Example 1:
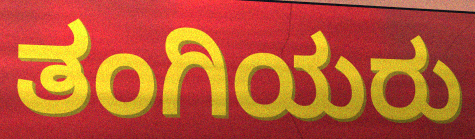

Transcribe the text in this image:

ತಂಗಿಯರು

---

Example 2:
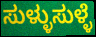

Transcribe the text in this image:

ಸುಳ್ಳುಸುಳ್ಳೆ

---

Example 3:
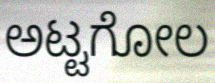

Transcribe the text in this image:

ಅಟ್ಟಗೋಲ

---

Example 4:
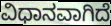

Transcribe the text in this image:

ವಿಧಾನವಾಗಿದೆ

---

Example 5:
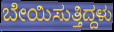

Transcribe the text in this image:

ಬೇಯಿಸುತ್ತಿದ್ದಳು